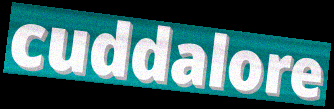
cuddalore